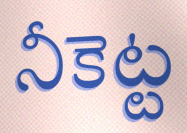
నీకెట్ట